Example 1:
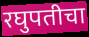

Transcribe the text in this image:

रघुपतीचा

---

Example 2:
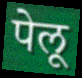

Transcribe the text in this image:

पेलू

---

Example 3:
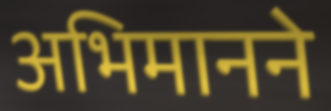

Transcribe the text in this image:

अभिमानने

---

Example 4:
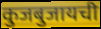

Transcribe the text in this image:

कुजबुजायची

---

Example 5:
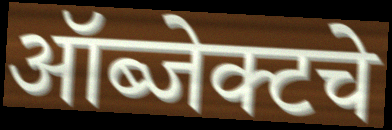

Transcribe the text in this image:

ऑब्जेक्टचे